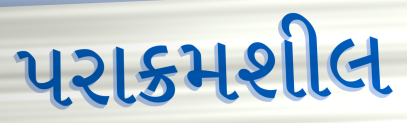
પરાક્રમશીલ